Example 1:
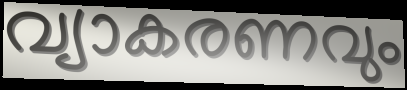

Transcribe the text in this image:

വ്യാകരണവും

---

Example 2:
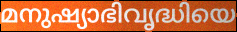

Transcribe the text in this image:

മനുഷ്യാഭിവൃദ്ധിയെ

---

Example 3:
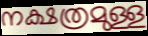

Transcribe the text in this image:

നക്ഷത്രമുള്ള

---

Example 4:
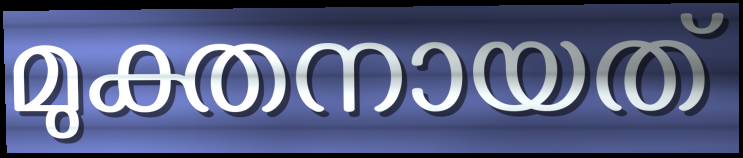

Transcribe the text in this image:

മുക്തനായത്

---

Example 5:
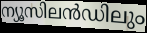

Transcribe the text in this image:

ന്യൂസിലൻഡിലും